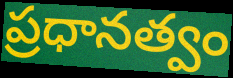
ప్రధానత్వం